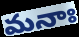
మనాః